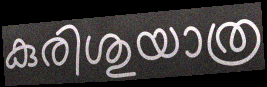
കുരിശുയാത്ര